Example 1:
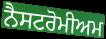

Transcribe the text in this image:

ਨੈਸਟਰੋਮੀਅਮ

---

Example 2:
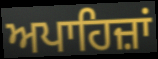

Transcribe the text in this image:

ਅਪਾਹਿਜ਼ਾਂ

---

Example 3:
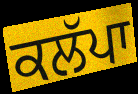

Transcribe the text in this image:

ਕਲੱਪਾ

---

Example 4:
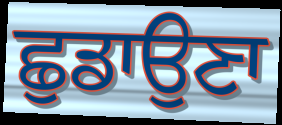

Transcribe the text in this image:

ਛੁਡਾਉਣਾ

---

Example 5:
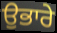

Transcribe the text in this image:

ਉਭਾਰੇ